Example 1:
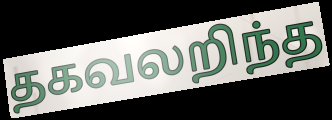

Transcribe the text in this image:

தகவலறிந்த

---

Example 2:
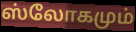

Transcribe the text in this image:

ஸ்லோகமும்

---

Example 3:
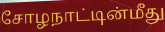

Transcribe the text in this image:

சோழநாட்டின்மீது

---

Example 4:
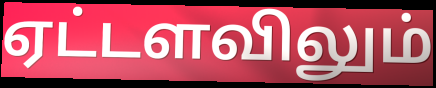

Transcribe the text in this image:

ஏட்டளவிலும்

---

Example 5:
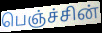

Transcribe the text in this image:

பெஞ்ச்சின்